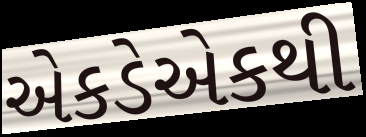
એકડેએકથી